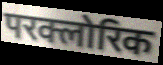
परक्लोरिक